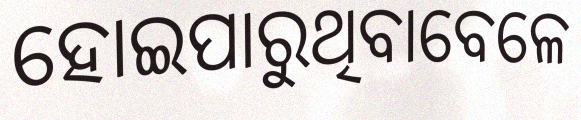
ହୋଇପାରୁଥିବାବେଳେ